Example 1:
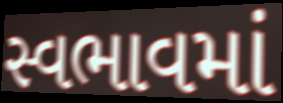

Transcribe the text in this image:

સ્વભાવમાં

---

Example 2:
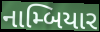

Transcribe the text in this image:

નામ્બિયાર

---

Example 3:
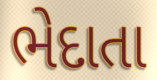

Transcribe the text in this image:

ભેદાતા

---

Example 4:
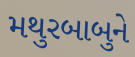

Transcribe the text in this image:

મથુરબાબુને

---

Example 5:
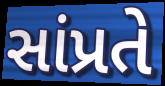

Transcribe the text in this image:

સાંપ્રતે